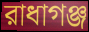
রাধাগঞ্জ